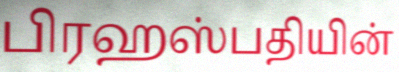
பிரஹஸ்பதியின்